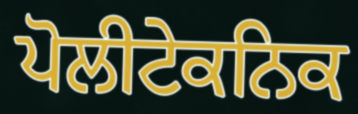
ਪੋਲੀਟੇਕਨਿਕ